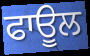
ਫਾਊਲ